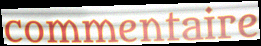
commentaire